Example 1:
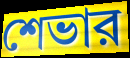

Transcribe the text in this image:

শেভার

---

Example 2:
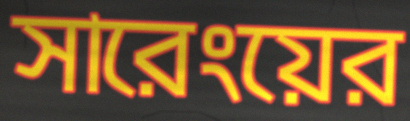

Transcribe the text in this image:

সারেংয়ের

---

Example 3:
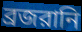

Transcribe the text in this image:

ব্রজরানি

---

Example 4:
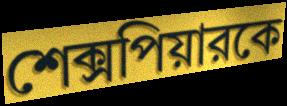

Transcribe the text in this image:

শেক্সপিয়ারকে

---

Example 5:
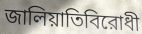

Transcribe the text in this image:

জালিয়াতিবিরোধী